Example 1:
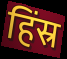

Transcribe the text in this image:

हिंस्र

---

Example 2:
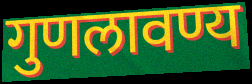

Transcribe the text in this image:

गुणलावण्य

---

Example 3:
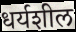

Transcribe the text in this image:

धर्यशील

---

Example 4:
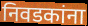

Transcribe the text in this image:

निवडकांना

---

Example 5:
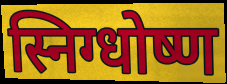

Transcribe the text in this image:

स्निग्धोष्ण